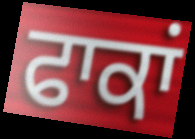
ਫਾਕਾਂ